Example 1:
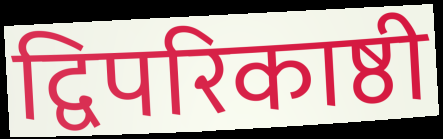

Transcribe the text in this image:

द्विपरिकाष्ठी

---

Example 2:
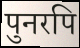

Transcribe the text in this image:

पुनरपि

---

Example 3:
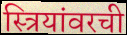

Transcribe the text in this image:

स्त्रियांवरची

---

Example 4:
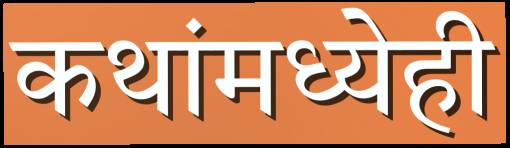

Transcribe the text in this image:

कथांमध्येही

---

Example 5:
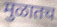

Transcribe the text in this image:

मुळातच